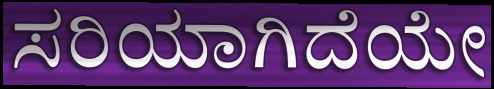
ಸರಿಯಾಗಿದೆಯೇ